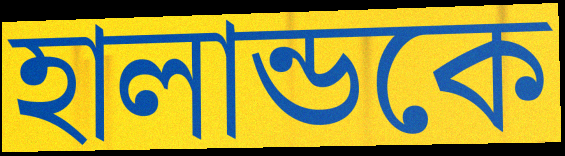
হালান্ডকে